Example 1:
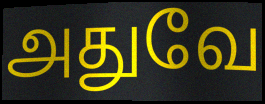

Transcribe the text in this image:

அதுவே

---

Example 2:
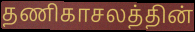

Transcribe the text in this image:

தணிகாசலத்தின்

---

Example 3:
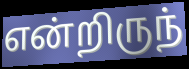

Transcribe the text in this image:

என்றிருந்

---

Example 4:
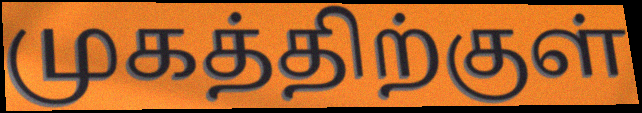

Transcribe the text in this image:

முகத்திற்குள்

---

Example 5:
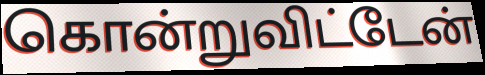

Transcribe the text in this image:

கொன்றுவிட்டேன்